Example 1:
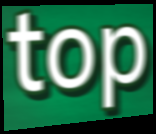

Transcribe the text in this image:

top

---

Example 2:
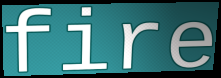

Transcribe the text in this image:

fire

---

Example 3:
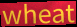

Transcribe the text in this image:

wheat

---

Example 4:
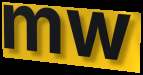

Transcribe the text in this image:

mw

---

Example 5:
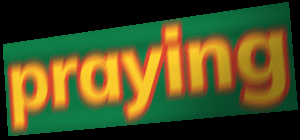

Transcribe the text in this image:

praying